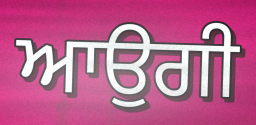
ਆਉਗੀ